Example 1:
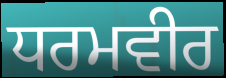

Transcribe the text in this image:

ਧਰਮਵੀਰ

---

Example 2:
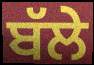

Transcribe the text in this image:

ਬੱਲੇ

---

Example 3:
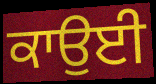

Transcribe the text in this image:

ਕਾਉਈ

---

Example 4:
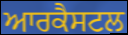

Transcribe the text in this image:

ਆਰਕੈਸਟਲ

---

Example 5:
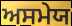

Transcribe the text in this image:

ਅਸਮੇਯ